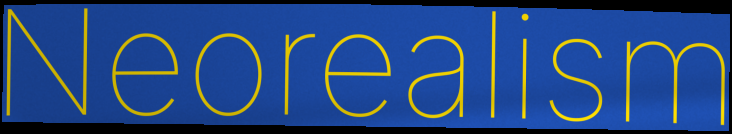
Neorealism